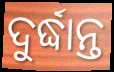
ଦୁର୍ଦ୍ଧାନ୍ତ